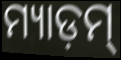
ମ୍ୟାଡ଼ମ୍